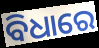
ବିଧାରେ